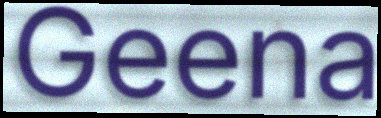
Geena